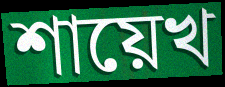
শায়েখ